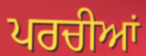
ਪਰਚੀਆਂ